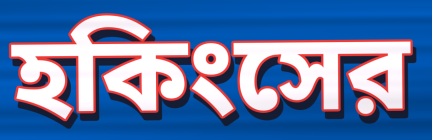
হকিংসের